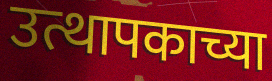
उत्थापकाच्या